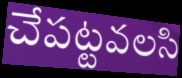
చేపట్టవలసి